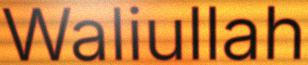
Waliullah